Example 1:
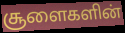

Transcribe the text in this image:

சூளைகளின்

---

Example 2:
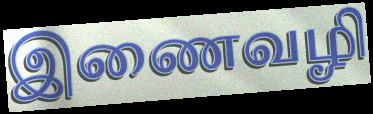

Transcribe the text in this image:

இணைவழி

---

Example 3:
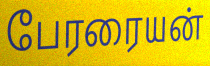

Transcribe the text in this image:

பேரரையன்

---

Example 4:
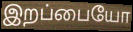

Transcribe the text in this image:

இறப்பையோ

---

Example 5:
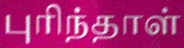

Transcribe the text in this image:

புரிந்தாள்